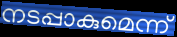
നടപ്പാകുമെന്ന്